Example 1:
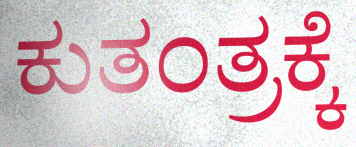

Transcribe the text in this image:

ಕುತಂತ್ರಕ್ಕೆ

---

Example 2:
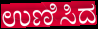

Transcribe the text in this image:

ಉಣಿಸಿದ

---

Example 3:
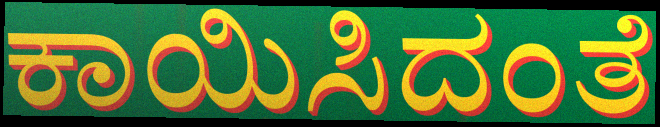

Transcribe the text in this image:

ಕಾಯಿಸಿದಂತೆ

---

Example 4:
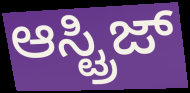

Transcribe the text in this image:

ಆಸ್ಟ್ರಿಜ್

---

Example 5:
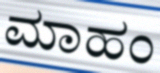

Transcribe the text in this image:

ಮಾಹಂ